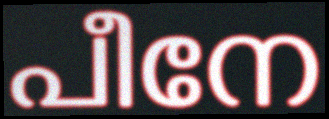
പീനേ